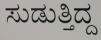
ಸುಡುತ್ತಿದ್ದ